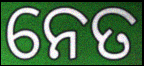
ନେତ